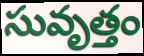
సువృత్తం